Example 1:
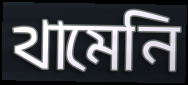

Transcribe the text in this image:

থামেনি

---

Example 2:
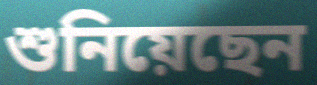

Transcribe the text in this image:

শুনিয়েছেন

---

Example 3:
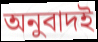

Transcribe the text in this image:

অনুবাদই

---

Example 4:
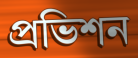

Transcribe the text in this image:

প্রভিশন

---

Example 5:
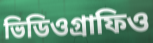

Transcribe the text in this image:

ভিডিওগ্রাফিও